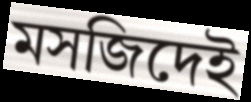
মসজিদেই